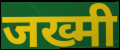
जख्मी